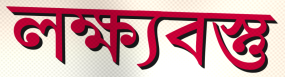
লক্ষ্যবস্তু